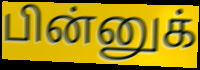
பின்னுக்